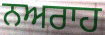
ਨਅਰਾਹ